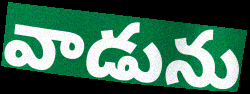
వాడును